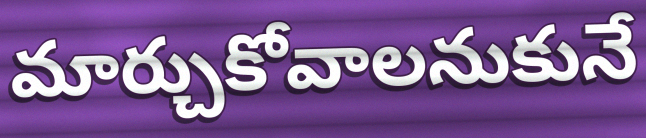
మార్చుకోవాలనుకునే